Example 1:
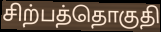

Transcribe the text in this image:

சிற்பத்தொகுதி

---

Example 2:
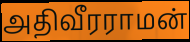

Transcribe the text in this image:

அதிவீரராமன்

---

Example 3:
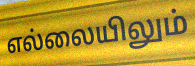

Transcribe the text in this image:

எல்லையிலும்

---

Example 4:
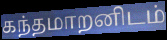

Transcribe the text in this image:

கந்தமாறனிடம்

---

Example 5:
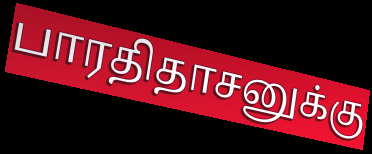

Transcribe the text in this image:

பாரதிதாசனுக்கு